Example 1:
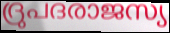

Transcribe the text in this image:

ദ്രുപദരാജസ്യ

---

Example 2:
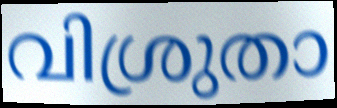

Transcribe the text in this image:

വിശ്രുതാ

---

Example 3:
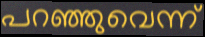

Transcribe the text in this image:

പറഞ്ഞുവെന്ന്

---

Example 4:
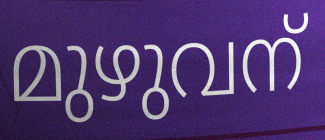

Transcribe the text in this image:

മുഴുവന്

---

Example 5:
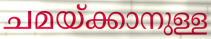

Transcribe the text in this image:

ചമയ്ക്കാനുള്ള